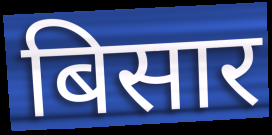
बिसार